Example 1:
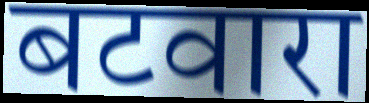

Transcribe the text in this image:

बटवारा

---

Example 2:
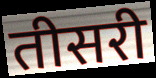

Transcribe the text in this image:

तीसरी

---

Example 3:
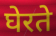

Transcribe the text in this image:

घेरते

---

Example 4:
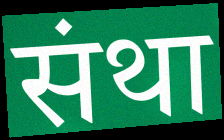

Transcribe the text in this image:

संथा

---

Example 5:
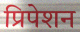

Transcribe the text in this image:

प्रिपेशन